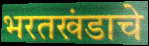
भरतखंडाचे